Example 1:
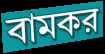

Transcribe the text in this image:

বামকর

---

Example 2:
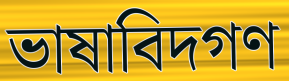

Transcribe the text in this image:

ভাষাবিদগণ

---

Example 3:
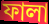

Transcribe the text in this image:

ফালা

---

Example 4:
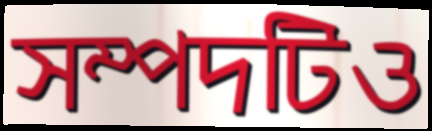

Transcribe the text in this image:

সম্পদটিও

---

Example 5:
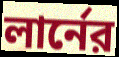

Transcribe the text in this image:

লার্নের